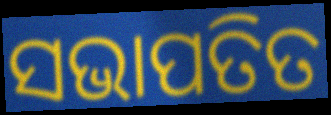
ସଭାପତିତ